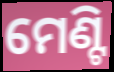
ମେଣ୍ଟି